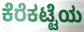
ಕೆರೆಕಟ್ಟೆಯ